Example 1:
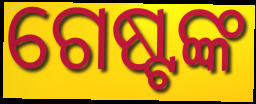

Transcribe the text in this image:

ଗେଷ୍ଟଙ୍କ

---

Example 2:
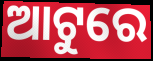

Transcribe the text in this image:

ଆଟୁରେ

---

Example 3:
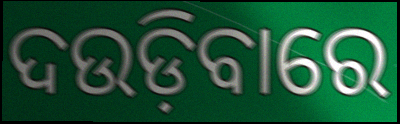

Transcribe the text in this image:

ଦଉଡ଼ିବାରେ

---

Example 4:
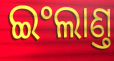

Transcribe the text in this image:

ଇଂଲାଣ୍ତ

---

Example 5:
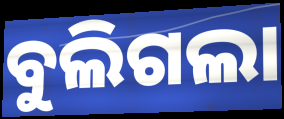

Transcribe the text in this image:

ବୁଲିଗଲା